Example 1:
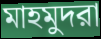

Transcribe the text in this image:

মাহমুদরা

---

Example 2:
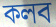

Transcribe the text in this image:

কলব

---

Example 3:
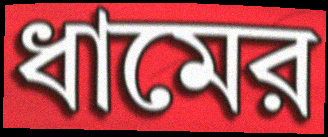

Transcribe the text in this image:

ধামের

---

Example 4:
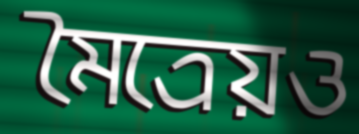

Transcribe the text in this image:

মৈত্রেয়ও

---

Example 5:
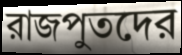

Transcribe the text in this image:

রাজপুতদের